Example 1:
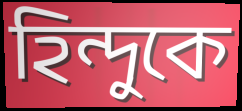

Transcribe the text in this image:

হিন্দুকে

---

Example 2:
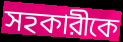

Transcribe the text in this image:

সহকারীকে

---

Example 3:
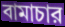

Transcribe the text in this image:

বামাচার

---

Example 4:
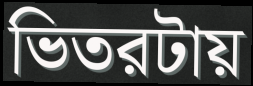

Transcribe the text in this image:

ভিতরটায়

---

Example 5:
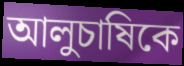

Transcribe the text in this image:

আলুচাষিকে